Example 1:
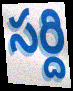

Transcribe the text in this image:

సర్ది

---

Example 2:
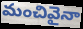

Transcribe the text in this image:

మంచివైనా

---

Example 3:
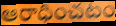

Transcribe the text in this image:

ఆరాధించటం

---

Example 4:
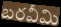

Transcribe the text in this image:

బరవీమి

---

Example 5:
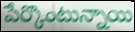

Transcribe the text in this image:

పేర్కొంటున్నాయి